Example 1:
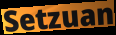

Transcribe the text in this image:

Setzuan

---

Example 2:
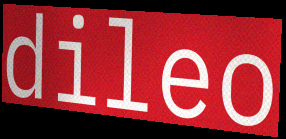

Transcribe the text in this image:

dileo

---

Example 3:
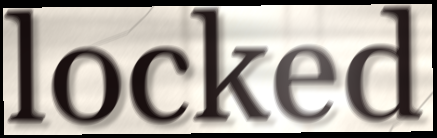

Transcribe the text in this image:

locked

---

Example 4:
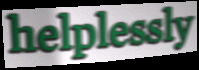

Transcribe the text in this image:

helplessly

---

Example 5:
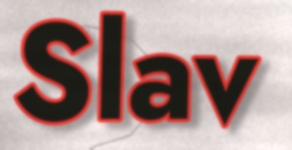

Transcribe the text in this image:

Slav